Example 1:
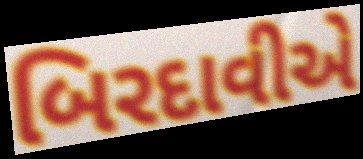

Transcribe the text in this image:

બિરદાવીએ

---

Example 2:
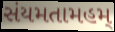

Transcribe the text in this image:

સંયમતામહમ્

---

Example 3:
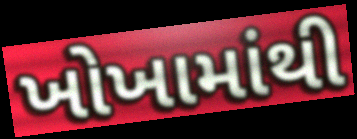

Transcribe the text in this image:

ખોખામાંથી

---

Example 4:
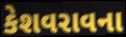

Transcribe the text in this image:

કેશવરાવના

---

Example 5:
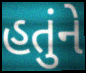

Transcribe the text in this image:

હતુંને